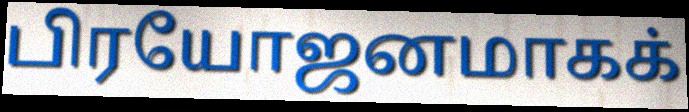
பிரயோஜனமாகக்